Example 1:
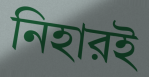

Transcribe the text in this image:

নিহারই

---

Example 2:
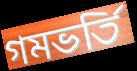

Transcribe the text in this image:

গমভর্তি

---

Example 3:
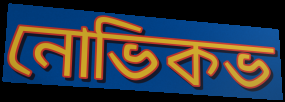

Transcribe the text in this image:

নোভিকভ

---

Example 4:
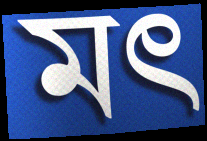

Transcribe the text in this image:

মৎ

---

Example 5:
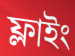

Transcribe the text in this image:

ফ্লাইং